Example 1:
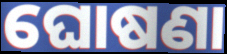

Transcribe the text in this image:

ଘୋଷଣା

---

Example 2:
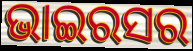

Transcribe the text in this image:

ଭାଇରସର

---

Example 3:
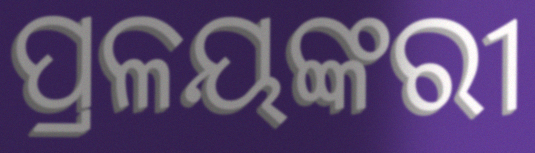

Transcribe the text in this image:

ପ୍ରଳୟଙ୍କରୀ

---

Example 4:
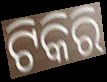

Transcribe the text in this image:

ଟିକିରି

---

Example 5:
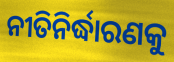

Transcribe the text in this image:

ନୀତିନିର୍ଦ୍ଧାରଣକୁ